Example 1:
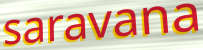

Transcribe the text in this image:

saravana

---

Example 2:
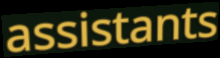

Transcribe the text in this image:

assistants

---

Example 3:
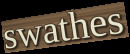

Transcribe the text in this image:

swathes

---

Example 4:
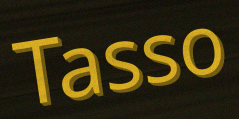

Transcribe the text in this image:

Tasso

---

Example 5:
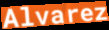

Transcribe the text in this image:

Alvarez